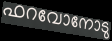
ഫറവോനോടു